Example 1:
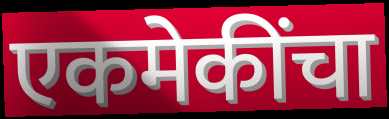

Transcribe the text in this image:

एकमेकींचा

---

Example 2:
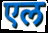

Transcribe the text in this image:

एल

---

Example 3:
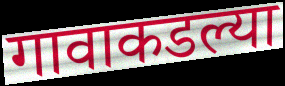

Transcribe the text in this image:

गावाकडल्या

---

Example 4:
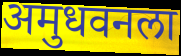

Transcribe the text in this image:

अमुधवनला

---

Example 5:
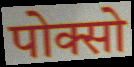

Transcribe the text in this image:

पोक्सो